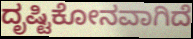
ದೃಷ್ಟಿಕೋನವಾಗಿದೆ